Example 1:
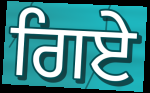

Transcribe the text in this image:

ਗਿਏ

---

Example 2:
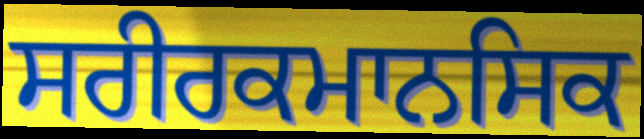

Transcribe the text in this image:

ਸਰੀਰਕਮਾਨਸਿਕ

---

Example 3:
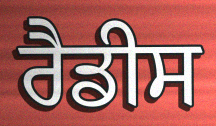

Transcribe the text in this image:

ਰੈਡੀਸ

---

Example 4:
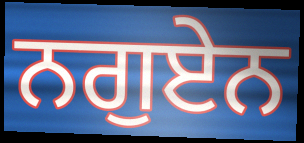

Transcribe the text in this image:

ਨਗੁਏਨ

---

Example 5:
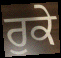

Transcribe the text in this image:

ਰੁਕੇ